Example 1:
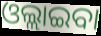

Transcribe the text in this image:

ଓଲ୍ଲାଇବା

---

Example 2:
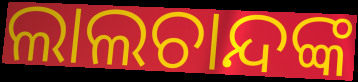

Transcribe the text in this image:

ଲାଲଚାନ୍ଦଙ୍କ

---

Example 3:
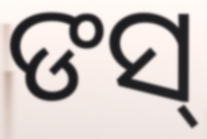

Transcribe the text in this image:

ଙସ୍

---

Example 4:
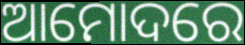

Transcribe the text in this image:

ଆମୋଦରେ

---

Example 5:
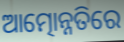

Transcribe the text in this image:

ଆତ୍ମୋନ୍ନତିରେ